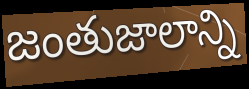
జంతుజాలాన్ని